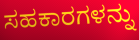
ಸಹಕಾರಗಳನ್ನು